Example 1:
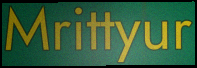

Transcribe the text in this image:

Mrittyur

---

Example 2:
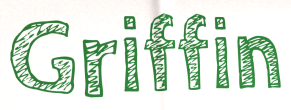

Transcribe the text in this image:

Griffin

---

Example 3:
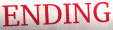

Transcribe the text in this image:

ENDING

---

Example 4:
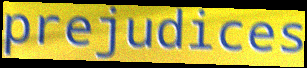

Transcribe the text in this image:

prejudices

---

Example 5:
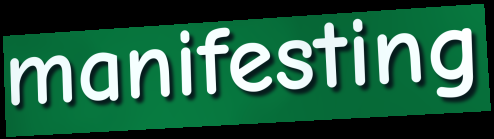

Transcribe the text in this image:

manifesting